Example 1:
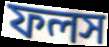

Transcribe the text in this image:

ফলস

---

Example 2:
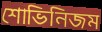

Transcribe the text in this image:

শোভিনিজম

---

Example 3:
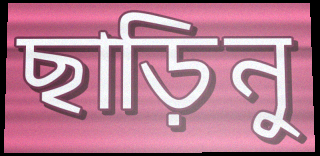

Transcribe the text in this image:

ছাড়িনু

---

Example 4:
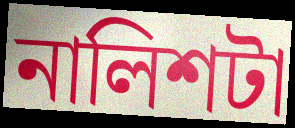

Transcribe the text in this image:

নালিশটা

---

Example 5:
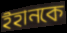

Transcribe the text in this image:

ইহানকে